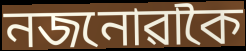
নজনোৱাকৈ